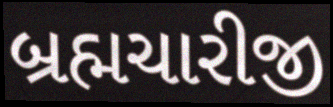
બ્રહ્મચારીજી